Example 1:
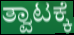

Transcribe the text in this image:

ತ್ವಾಟಕ್ಕೆ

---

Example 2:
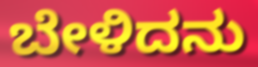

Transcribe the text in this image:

ಬೇಳಿದನು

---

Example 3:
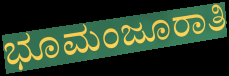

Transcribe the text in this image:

ಭೂಮಂಜೂರಾತಿ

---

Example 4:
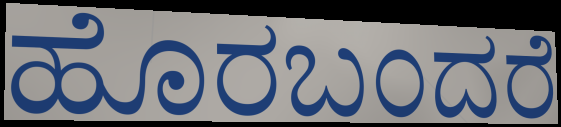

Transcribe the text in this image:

ಹೊರಬಂದರೆ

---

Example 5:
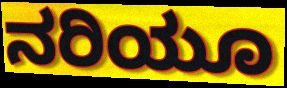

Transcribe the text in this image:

ನರಿಯೂ